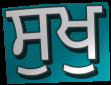
ਸੁਖੁ